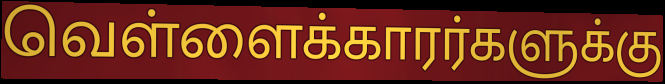
வெள்ளைக்காரர்களுக்கு